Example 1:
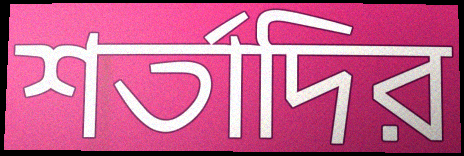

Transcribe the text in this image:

শর্তাদির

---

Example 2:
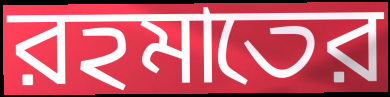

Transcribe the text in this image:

রহমাতের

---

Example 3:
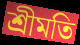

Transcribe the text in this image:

শ্রীমতি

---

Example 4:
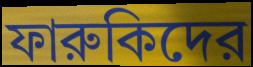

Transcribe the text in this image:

ফারুকিদের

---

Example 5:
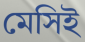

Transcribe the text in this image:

মেসিই